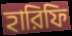
হারিফি